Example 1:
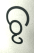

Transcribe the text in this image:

ଚୃ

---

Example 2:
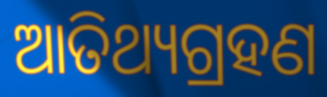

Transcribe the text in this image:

ଆତିଥ୍ୟଗ୍ରହଣ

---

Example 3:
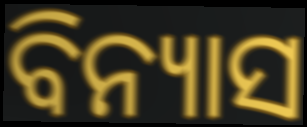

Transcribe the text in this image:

ବିନ୍ୟାସ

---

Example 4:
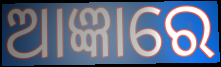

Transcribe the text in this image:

ଆଜ୍ଞାରେ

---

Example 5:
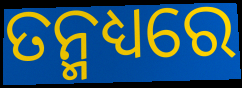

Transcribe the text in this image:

ତନ୍ମଧ୍ୟରେ